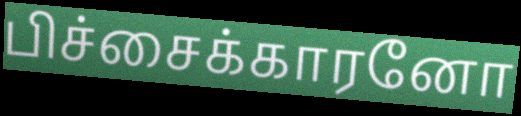
பிச்சைக்காரனோ